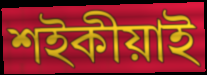
শইকীয়াই